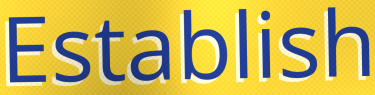
Establish